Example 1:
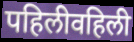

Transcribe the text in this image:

पहिलीवहिली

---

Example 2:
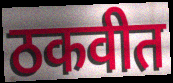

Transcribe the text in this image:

ठकवीत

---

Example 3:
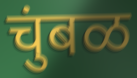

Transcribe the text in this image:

चुंबळ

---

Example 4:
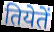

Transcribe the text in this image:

तियेतें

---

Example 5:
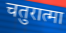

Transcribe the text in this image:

चतुरात्मा